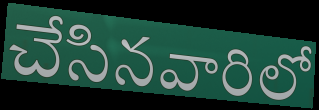
చేసినవారిలో